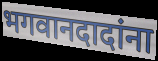
भगवानदादांना